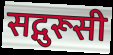
सद्गुरूसी